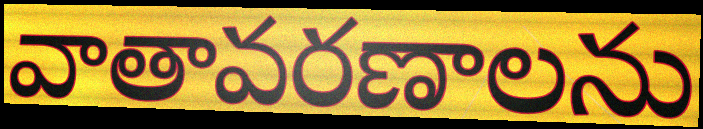
వాతావరణాలను